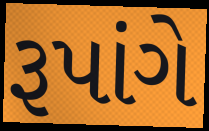
રૂપાંગે